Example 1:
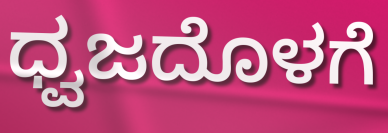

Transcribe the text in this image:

ಧ್ವಜದೊಳಗೆ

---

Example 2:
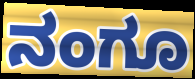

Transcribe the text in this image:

ನಂಗೂ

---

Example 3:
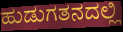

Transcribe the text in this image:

ಹುಡುಗತನದಲ್ಲಿ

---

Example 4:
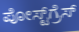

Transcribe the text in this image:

ಪೋಸ್ಟ್‌ಗ್ರೆಸ್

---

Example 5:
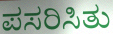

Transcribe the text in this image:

ಪಸರಿಸಿತು